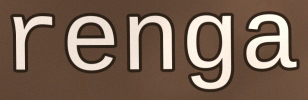
renga